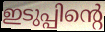
ഇടുപ്പിന്റെ